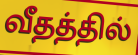
வீதத்தில்